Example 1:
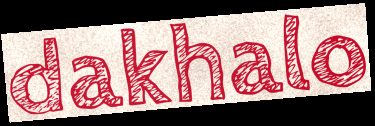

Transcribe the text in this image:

dakhalo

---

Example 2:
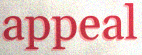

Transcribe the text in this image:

appeal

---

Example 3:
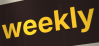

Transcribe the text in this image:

weekly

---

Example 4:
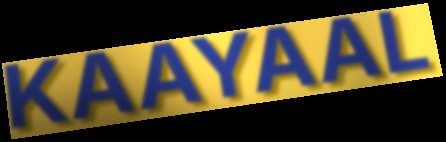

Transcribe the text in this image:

KAAYAAL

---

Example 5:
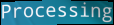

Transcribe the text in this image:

Processing